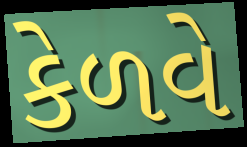
કેળવે